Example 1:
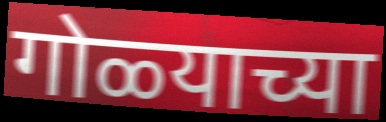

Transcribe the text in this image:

गोळ्याच्या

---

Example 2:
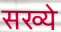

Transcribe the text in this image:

सख्ये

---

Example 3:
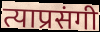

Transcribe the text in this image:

त्याप्रसंगी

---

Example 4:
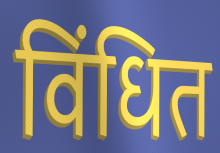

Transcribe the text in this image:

विंधित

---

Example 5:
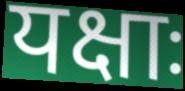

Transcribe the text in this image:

यक्षाः